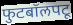
फुटबॉलपटू